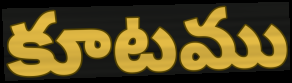
కూటము